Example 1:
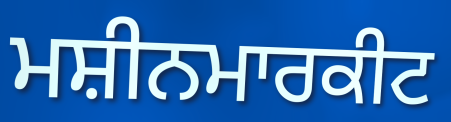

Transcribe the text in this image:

ਮਸ਼ੀਨਮਾਰਕੀਟ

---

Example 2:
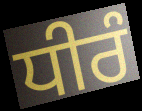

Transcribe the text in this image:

ਧੀਰੰ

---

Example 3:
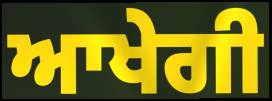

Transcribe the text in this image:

ਆਖੇਗੀ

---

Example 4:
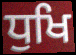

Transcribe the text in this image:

ਧੁਖਿ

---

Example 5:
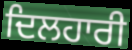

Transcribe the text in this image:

ਦਿਲਹਾਰੀ